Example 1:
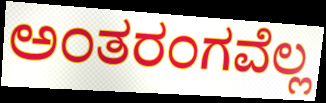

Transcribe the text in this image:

ಅಂತರಂಗವೆಲ್ಲ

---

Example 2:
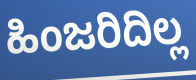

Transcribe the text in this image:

ಹಿಂಜರಿದಿಲ್ಲ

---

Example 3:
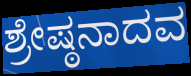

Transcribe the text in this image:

ಶ್ರೇಷ್ಠನಾದವ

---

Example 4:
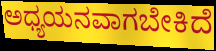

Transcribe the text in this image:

ಅಧ್ಯಯನವಾಗಬೇಕಿದೆ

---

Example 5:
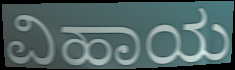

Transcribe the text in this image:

ವಿಹಾಯ